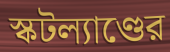
স্কটল্যাণ্ডের